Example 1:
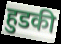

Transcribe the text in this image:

हुडकी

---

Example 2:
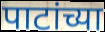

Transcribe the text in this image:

पाटांच्या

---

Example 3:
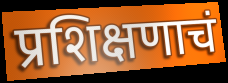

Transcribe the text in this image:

प्रशिक्षणाचं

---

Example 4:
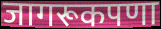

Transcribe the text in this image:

जागरूकपणा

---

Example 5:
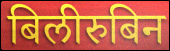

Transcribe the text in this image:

बिलीरुबिन